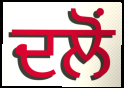
ਦਲੋਂ